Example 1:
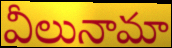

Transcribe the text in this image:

వీలునామా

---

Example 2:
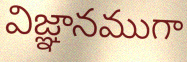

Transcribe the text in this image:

విజ్ఞానముగా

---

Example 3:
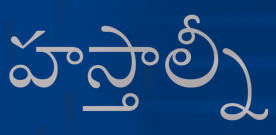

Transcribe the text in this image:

హస్తాల్నీ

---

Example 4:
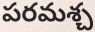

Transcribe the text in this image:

పరమశ్చ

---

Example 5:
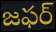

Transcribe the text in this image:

జఫర్